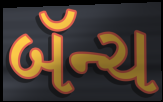
બૅન્ચ